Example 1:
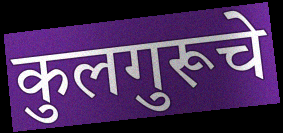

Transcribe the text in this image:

कुलगुरूचे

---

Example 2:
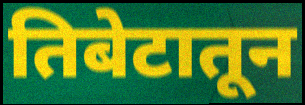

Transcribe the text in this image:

तिबेटातून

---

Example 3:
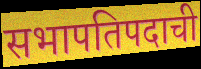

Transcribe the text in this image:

सभापतिपदाची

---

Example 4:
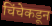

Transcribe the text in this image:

चिंचेकडून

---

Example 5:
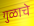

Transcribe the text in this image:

गुळाचे